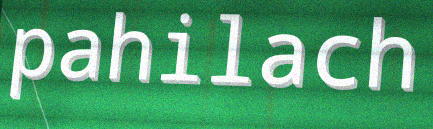
pahilach